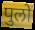
पुलो